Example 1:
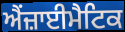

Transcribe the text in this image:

ਐਂਜ਼ਾਈਮੈਟਿਕ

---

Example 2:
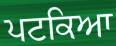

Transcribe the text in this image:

ਪਟਕਿਆ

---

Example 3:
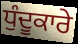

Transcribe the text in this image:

ਧੁੰਦੂਕਾਰੇ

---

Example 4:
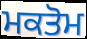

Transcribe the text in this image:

ਮਕਤੋਮ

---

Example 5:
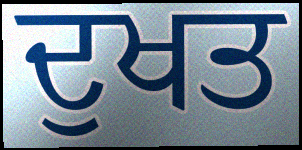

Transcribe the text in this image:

ਦੁਖਤ